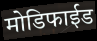
मोडिफाईड